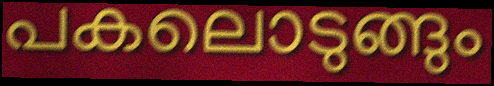
പകലൊടുങ്ങും